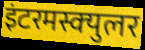
इंटरमस्क्युलर